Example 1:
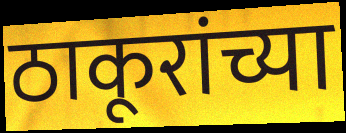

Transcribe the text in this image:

ठाकूरांच्या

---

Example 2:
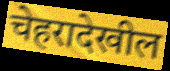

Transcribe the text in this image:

चेहरादेखील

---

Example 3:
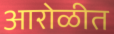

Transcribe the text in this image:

आरोळीत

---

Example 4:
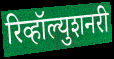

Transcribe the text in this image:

रिव्हॉल्युशनरी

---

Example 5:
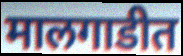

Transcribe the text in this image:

मालगाडीत